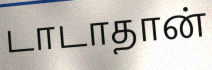
டாடாதான்